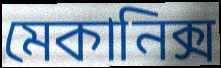
মেকানিক্স